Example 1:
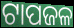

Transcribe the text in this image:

ଟାପଜଳ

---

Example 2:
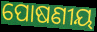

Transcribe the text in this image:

ପୋଷଣୀୟ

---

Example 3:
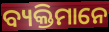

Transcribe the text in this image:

ବ୍ୟକ୍ତିମାନେ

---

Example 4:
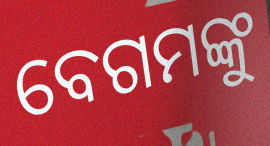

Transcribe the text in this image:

ବେଗମଙ୍କୁ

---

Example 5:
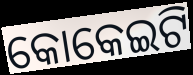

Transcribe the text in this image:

କୋକେଇଟି